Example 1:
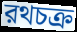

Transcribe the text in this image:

রথচক্র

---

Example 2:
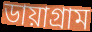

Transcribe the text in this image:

ডায়াগ্রাম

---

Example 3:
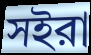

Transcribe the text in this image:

সইরা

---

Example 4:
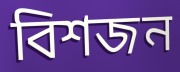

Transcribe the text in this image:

বিশজন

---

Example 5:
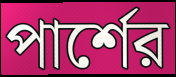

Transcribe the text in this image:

পার্শের